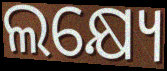
ଲକ୍ଷ୍ୟେ